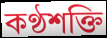
কণ্ঠশক্তি